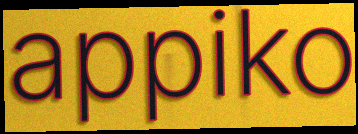
appiko